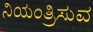
ನಿಯಂತ್ರಿಸುವ